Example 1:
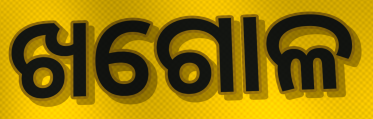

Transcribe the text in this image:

ଖଗୋଳ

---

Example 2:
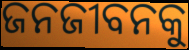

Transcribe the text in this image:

ଜନଜୀବନକୁ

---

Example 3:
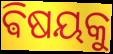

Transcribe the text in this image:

ଵିଷୟକୁ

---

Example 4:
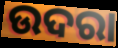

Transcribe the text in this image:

ଉଦରା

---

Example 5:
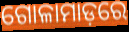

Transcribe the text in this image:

ଗୋଳାମାଡ଼ରେ